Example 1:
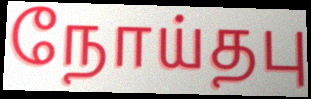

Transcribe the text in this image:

நோய்தபு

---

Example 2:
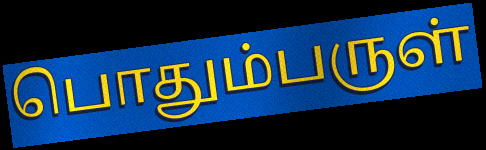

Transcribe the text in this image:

பொதும்பருள்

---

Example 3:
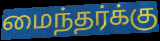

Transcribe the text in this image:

மைந்தர்க்கு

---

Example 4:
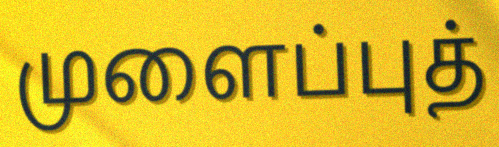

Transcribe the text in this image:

முளைப்புத்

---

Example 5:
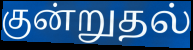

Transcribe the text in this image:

குன்றுதல்